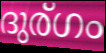
ദുര്ഗം